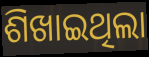
ଶିଖାଇଥିଲା